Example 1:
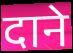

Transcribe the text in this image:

दाने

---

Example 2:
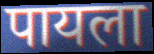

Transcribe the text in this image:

पायला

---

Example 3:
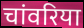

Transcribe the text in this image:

चांवरिया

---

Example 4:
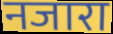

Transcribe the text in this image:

नजारा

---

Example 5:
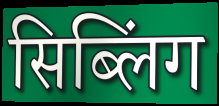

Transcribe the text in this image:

सिब्लिंग